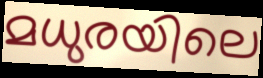
മധുരയിലെ